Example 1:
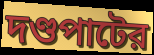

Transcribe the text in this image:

দণ্ডপাটের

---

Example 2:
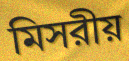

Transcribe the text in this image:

মিসরীয়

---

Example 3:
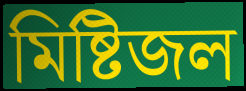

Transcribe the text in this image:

মিষ্টিজল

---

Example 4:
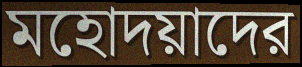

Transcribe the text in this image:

মহোদয়াদের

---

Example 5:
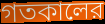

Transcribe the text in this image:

গতকালের